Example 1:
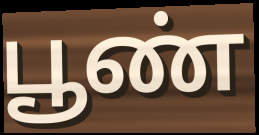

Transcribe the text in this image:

பூண்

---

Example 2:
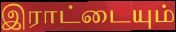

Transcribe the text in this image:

இராட்டையும்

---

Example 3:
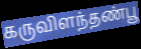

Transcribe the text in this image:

கருவிளந்தண்பூ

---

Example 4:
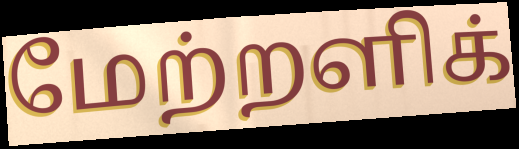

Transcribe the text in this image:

மேற்றளிக்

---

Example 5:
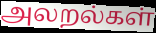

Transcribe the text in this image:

அலறல்கள்